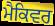
ਮੈਕਿਵਰ